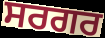
ਸਰਗਰ